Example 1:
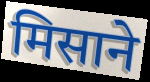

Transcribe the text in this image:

मिसाने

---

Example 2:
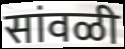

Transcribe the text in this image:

सांवळी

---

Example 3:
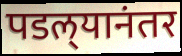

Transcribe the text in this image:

पडल्यानंतर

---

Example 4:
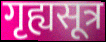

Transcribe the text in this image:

गृह्यसूत्र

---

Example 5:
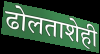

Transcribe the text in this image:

ढोलताशेही